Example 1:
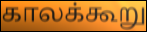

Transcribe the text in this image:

காலக்கூறு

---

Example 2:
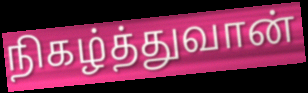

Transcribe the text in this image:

நிகழ்த்துவான்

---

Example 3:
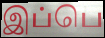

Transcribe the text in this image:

இப்பெ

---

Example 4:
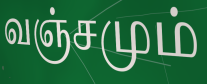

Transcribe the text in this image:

வஞ்சமும்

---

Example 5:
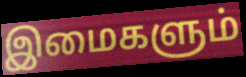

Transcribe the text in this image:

இமைகளும்